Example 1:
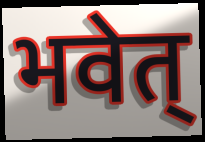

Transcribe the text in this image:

भवेत्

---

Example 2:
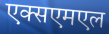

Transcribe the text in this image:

एक्सएमएल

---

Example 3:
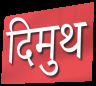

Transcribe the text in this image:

दिमुथ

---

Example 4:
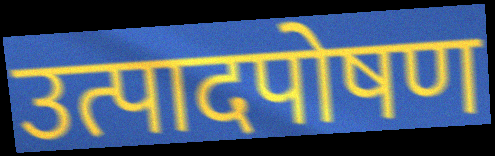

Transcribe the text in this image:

उत्पादपोषण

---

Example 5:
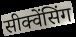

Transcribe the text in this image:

सीक्वेंसिंग